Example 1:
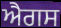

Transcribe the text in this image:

ਐਗਸ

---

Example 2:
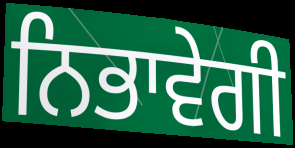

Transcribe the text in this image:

ਨਿਭਾਵੇਗੀ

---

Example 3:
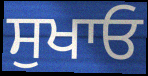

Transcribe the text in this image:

ਸੁਖਾਓ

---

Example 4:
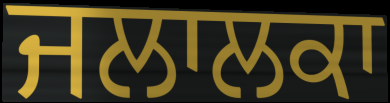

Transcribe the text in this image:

ਜਲਾਲਕਾ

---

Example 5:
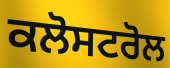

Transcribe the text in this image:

ਕਲੋਸਟਰੋਲ